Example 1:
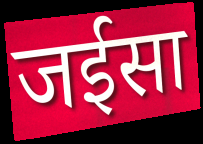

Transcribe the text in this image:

जईसा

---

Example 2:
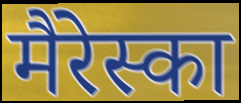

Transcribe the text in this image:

मैरेस्का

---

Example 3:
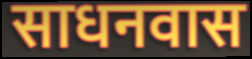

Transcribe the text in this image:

साधनवास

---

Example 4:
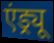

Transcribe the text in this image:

एंड्र्यू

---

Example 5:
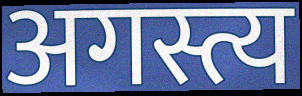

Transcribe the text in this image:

अगस्त्य